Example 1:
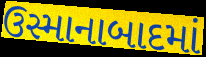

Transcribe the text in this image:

ઉસ્માનાબાદમાં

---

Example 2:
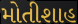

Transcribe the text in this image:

મોતીશાહ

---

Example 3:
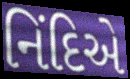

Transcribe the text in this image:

નિંદિએ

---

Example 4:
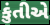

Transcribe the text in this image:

કુંતીએ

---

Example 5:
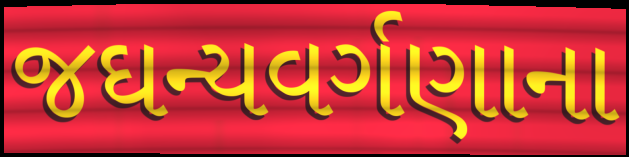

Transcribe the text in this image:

જઘન્યવર્ગણાના